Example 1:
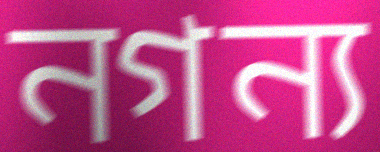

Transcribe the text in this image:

নগন্য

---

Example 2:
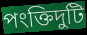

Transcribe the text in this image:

পংক্তিদুটি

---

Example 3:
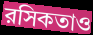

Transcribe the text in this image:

রসিকতাও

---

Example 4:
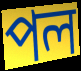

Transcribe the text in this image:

পল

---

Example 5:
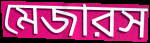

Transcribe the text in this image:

মেজারস